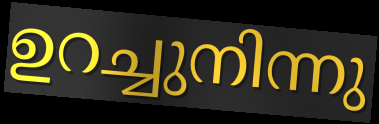
ഉറച്ചുനിന്നു